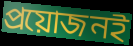
প্রয়োজনই